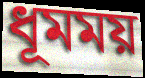
ধূমময়